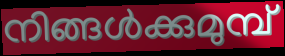
നിങ്ങൾക്കുമുമ്പ്